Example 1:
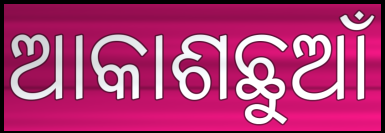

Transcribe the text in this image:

ଆକାଶଛୁଆଁ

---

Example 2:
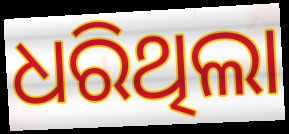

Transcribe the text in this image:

ଧରିଥିଲା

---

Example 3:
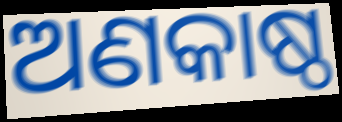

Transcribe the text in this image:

ଅଣକାଷ୍ଠ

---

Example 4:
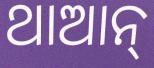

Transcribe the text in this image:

ଥାଆନ୍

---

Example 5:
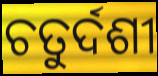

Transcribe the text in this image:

ଚତୁର୍ଦଶୀ